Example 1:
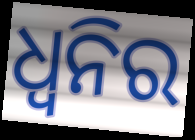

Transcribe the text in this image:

ଧ୍ୱନିର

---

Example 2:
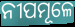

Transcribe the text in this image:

ନୀପମୂଳେ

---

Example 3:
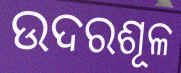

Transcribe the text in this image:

ଉଦରଶୂଳ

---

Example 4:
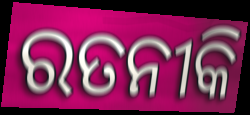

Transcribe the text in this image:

ରତନୀକି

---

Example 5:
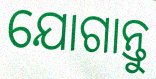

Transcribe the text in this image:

ଯୋଗାନ୍ତୁ